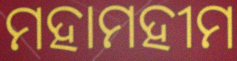
ମହାମହୀମ